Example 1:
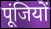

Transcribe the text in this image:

पूंजियों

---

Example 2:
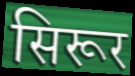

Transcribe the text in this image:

सिरूर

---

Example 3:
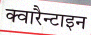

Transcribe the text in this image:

क्वारैन्टाइन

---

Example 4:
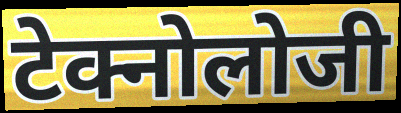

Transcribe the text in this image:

टेक्नोलोजी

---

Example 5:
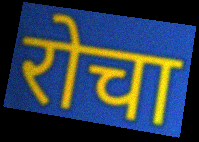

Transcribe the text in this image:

रोचा